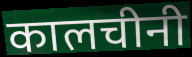
कालचीनी